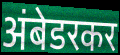
अंबेडरकर